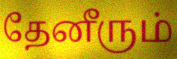
தேனீரும்